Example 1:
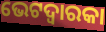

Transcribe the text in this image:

ଭେଟଦ୍ୱାରକା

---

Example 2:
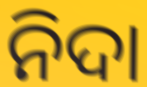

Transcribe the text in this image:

ନିଦା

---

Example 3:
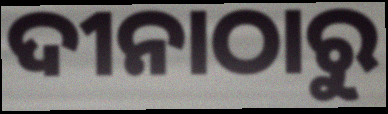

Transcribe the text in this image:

ଦୀନାଠାରୁ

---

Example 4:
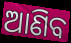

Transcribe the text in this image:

ଆଣିବ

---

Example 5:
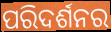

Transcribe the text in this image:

ପରିଦର୍ଶନର